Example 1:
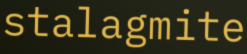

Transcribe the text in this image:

stalagmite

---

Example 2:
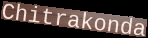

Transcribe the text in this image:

Chitrakonda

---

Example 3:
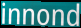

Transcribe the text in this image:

innond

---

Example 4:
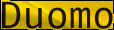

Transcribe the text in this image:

Duomo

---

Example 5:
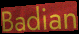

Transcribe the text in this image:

Badian